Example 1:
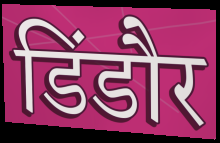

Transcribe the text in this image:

डिंडौर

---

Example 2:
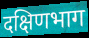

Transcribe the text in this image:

दक्षिणभाग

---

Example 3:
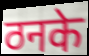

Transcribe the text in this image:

ठनके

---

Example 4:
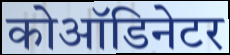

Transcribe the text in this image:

कोऑडिनेटर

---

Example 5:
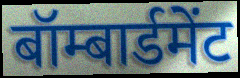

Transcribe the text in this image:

बॉम्बार्डमेंट